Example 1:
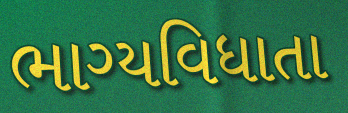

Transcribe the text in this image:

ભાગ્યવિધાતા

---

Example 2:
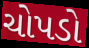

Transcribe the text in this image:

ચોપડો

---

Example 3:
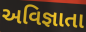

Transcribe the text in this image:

અવિજ્ઞાતા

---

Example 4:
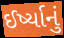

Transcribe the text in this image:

ઈર્ષ્યાનું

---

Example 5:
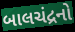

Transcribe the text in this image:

બાલચંદ્રનો